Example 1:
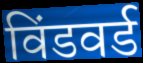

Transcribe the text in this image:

विंडवर्ड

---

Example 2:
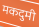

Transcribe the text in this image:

मकदुमी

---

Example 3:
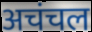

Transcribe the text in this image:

अचंचल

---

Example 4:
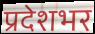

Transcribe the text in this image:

प्रदेशभर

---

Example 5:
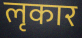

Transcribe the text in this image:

लृकार